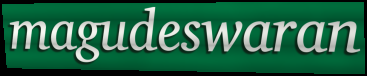
magudeswaran